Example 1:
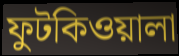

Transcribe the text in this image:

ফুটকিওয়ালা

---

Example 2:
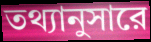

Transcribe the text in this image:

তথ্যানুসারে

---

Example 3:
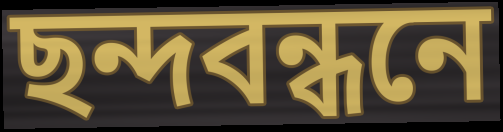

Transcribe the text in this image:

ছন্দবন্ধনে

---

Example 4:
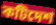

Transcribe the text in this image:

কটিদেশ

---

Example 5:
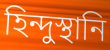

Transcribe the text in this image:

হিন্দুস্থানি